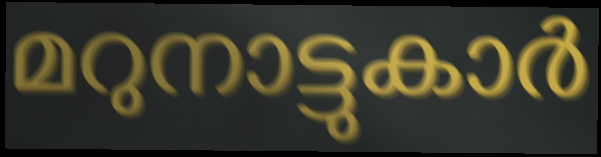
മറുനാട്ടുകാർ